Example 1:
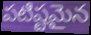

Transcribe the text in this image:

పటిష్టమైన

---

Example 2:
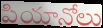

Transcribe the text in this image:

పియానోలు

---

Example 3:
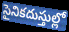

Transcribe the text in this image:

సైనికదుస్తుల్లో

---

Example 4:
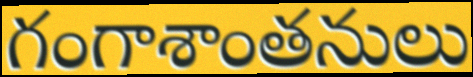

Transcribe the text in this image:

గంగాశాంతనులు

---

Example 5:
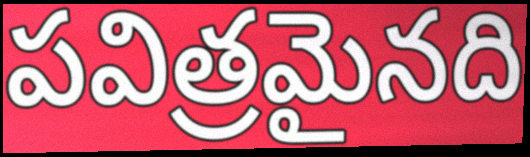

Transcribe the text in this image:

పవిత్రమైనది